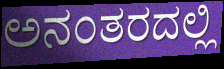
ಅನಂತರದಲ್ಲಿ